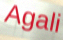
Agali